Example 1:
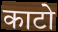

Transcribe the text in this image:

काटो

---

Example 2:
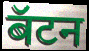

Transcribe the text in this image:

बॅटन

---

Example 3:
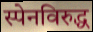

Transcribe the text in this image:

स्पेनविरुद्ध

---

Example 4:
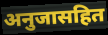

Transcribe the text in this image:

अनुजासहित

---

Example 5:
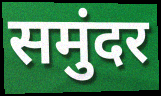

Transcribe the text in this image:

समुंदर